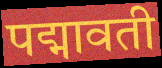
पद्मावती